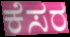
ಕೆಸರ